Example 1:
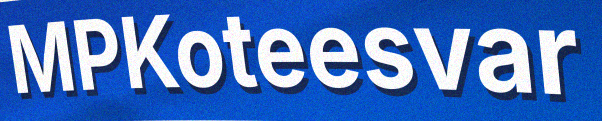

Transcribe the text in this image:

MPKoteesvar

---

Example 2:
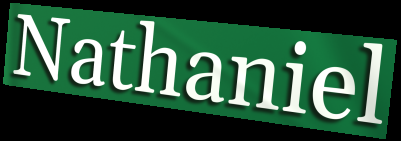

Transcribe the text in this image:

Nathaniel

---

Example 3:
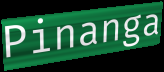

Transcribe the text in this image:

Pinanga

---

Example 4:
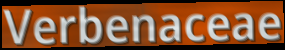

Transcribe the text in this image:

Verbenaceae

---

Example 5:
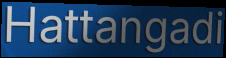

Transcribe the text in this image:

Hattangadi